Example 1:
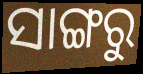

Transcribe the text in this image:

ସାଙ୍ଗରୁ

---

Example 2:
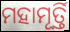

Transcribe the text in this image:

ମହାମୂର୍ତ୍ତି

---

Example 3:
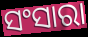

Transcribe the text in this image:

ସଂସାରା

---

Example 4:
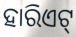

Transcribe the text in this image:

ହାରିଏଟ୍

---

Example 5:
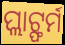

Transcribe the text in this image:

ପ୍ଲାଟ୍ଫର୍ମ